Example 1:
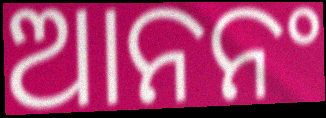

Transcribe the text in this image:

ଆନନଂ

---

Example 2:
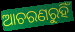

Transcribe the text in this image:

ଆଚରଣରୁହିଁ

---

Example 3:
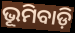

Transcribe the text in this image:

ଭୂମିବାଡ଼ି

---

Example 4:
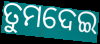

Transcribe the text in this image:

ତୁମଦେଇ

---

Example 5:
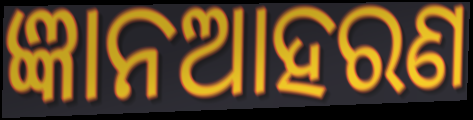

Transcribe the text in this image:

ଜ୍ଞାନଆହରଣ